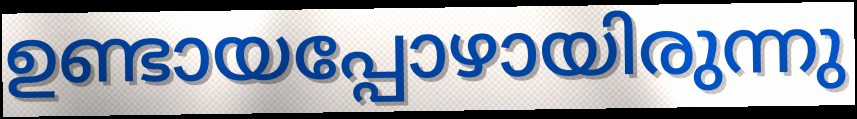
ഉണ്ടായപ്പോഴായിരുന്നു